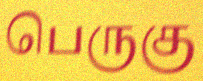
பெருகு